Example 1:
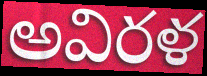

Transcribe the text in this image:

అవిరళ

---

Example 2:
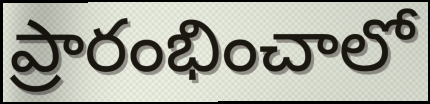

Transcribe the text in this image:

ప్రారంభించాలో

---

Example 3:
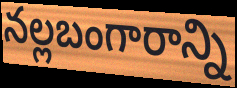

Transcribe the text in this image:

నల్లబంగారాన్ని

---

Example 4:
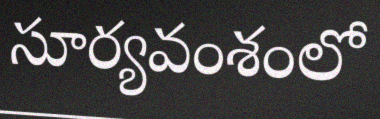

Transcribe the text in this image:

సూర్యవంశంలో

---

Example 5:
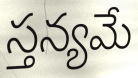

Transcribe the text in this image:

స్తన్యమే